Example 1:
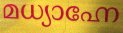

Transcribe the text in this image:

മധ്യാഹ്നേ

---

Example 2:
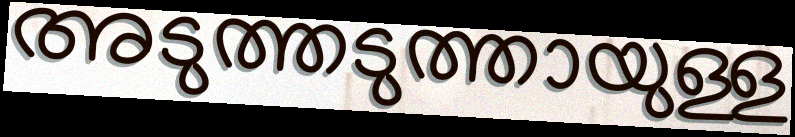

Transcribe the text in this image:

അടുത്തടുത്തായുള്ള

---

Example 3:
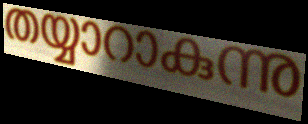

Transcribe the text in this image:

തയ്യാറാകുന്നു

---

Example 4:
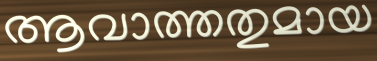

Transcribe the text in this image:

ആവാത്തതുമായ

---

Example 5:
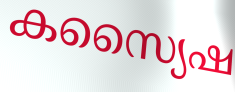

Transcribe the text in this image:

കസ്യൈഷ